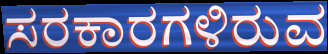
ಸರಕಾರಗಳಿರುವ